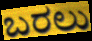
ಬರಲು